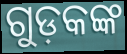
ଗୁଡ଼କଙ୍କ